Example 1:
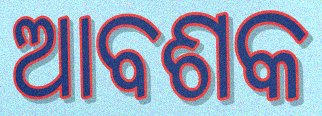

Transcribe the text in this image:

ଆବଶକ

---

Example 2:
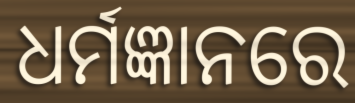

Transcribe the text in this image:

ଧର୍ମଜ୍ଞାନରେ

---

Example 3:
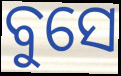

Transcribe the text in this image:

ବୁସେ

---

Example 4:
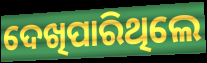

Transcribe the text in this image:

ଦେଖିପାରିଥିଲେ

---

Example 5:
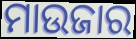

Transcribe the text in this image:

ମାଉଜାର